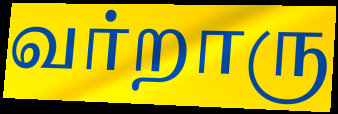
வர்றாரு